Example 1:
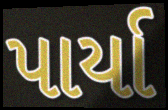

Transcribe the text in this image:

પાર્યા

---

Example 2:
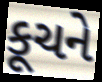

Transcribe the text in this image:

કૂચને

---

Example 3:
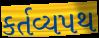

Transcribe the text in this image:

કર્તવ્યપથ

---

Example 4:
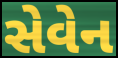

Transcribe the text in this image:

સેવેન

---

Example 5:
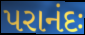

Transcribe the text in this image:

પરાનંદઃ